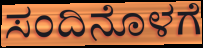
ಸಂದಿನೊಳಗೆ